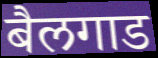
बैलगाड